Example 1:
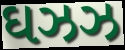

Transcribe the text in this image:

ઘઝઝ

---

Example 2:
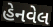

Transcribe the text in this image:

હેનવેલ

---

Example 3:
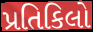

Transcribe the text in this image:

પ્રતિકિલો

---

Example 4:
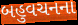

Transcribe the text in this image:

બહુવચનના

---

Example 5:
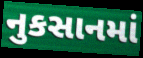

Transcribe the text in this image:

નુકસાનમાં